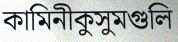
কামিনীকুসুমগুলি